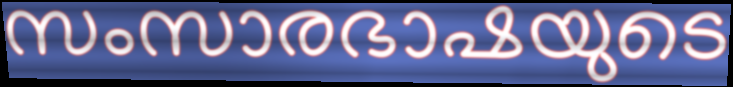
സംസാരഭാഷയുടെ